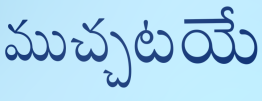
ముచ్చటయే